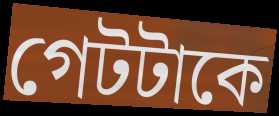
গেটটাকে